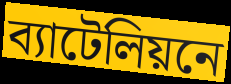
ব্যাটেলিয়নে